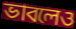
ভাবলেও